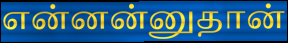
என்னன்னுதான்